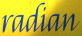
radian